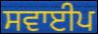
ਸਵਾਈਪ